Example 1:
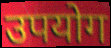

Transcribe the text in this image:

उपयोग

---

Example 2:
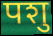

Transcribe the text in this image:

पशु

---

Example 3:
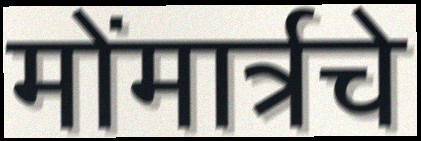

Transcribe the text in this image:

मोंमार्त्रचे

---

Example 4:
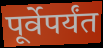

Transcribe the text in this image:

पूर्वेपर्यंत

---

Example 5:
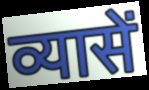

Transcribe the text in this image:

व्यासें